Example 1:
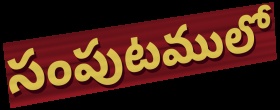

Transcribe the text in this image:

సంపుటములో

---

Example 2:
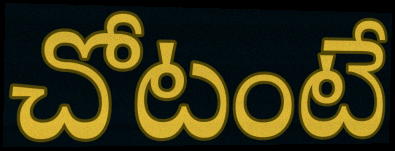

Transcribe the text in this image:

చోటంటే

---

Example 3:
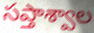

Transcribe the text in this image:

సప్తాశ్వాల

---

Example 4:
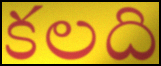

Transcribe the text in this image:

కలది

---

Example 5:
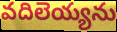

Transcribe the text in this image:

వదిలెయ్యను